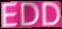
EDD